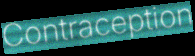
Contraception